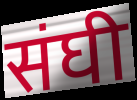
संघी